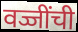
वज्जींची